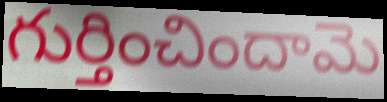
గుర్తించిందామె